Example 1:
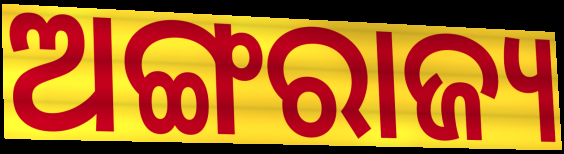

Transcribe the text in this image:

ଅଙ୍ଗରାଜ୍ୟ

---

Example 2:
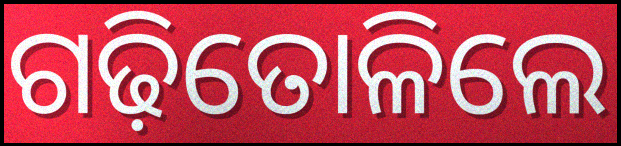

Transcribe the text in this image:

ଗଢ଼ିତୋଳିଲେ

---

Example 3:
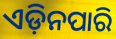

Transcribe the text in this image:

ଏଡ଼ିନପାରି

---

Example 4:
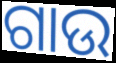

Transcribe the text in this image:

ଗାଉ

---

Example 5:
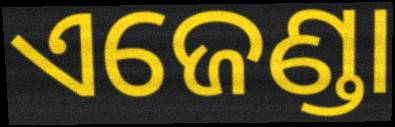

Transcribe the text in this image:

ଏଜେଣ୍ଡା